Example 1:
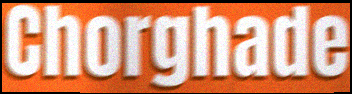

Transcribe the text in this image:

Chorghade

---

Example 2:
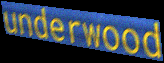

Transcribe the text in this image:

underwood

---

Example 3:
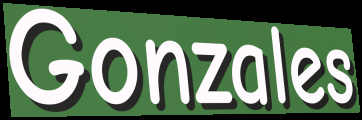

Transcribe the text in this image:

Gonzales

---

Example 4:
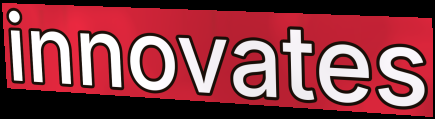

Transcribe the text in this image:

innovates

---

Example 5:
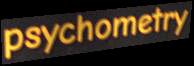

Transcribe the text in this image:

psychometry